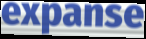
expanse